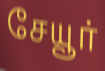
சேயூர்